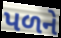
પળને